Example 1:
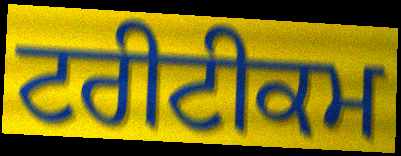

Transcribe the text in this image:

ਟਰੀਟੀਕਮ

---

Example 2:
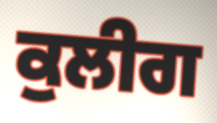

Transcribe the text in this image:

ਕੁਲੀਗ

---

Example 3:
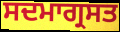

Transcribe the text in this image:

ਸਦਮਾਗ੍ਰਸਤ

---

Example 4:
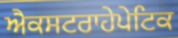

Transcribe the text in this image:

ਐਕਸਟਰਾਹੇਪੇਟਿਕ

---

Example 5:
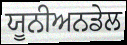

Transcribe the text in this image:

ਯੂਨੀਅਨਡੇਲ